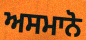
ਅਸਮਾਨੋ